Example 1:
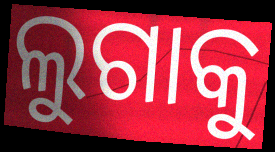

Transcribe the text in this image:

ଲୁଗାକୁ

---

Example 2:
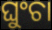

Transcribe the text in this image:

ଘୁଂଚା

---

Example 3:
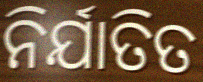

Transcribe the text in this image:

ନିର୍ଯାତିତ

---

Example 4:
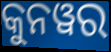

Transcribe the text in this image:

କୁନୱର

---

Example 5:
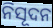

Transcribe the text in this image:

ନିସୂଦନ